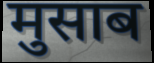
मुसाब